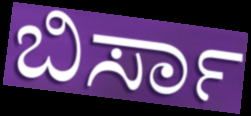
ಬಿರ್ಸಾ